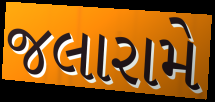
જલારામે